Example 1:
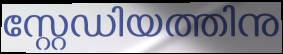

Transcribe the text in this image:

സ്റ്റേഡിയത്തിനു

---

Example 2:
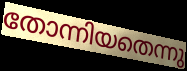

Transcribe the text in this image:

തോന്നിയതെന്നു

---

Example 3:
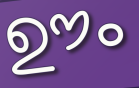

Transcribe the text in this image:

ഊം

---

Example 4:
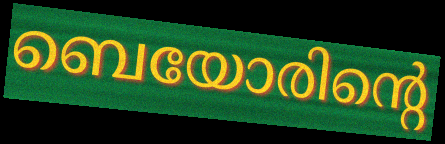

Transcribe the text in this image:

ബെയോരിന്റെ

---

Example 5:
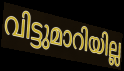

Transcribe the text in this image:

വിട്ടുമാറിയില്ല